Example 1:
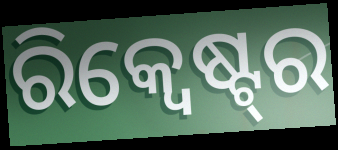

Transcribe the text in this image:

ରିକ୍ୱେଷ୍ଟ୍‌ର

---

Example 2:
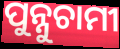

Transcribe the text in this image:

ପୁନ୍ନୁଚାମୀ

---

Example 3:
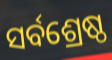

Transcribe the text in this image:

ସର୍ବଶ୍ରେଷ୍ଠ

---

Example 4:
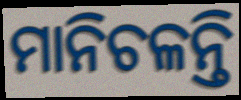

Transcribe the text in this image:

ମାନିଚଳନ୍ତି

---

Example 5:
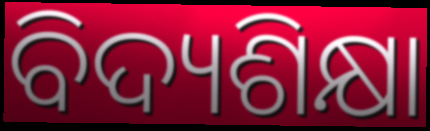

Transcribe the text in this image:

ବିଦ୍ୟଶିକ୍ଷା